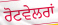
ਰੋਟਵੇਲਰਾਂ